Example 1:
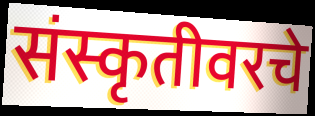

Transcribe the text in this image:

संस्कृतीवरचे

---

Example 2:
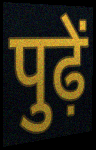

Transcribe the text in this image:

पुढ़ें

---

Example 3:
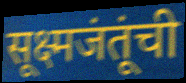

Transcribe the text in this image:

सूक्ष्मजंतूंची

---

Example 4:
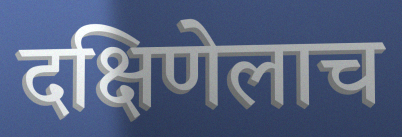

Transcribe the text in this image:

दक्षिणेलाच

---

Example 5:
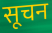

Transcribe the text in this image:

सूचन